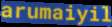
arumaiyil